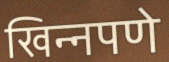
खिन्नपणे